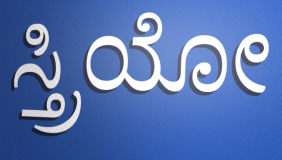
ಸ್ತ್ರಿಯೋ